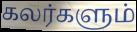
கலர்களும்